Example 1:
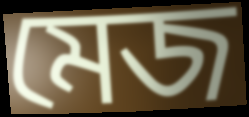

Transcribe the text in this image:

মেজ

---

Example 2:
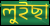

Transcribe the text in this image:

লুইছা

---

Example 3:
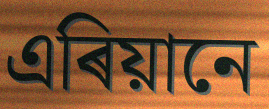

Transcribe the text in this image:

এৰিয়ানে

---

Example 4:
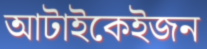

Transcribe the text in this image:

আটাইকেইজন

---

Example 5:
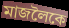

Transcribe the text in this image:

মাজলৈকে